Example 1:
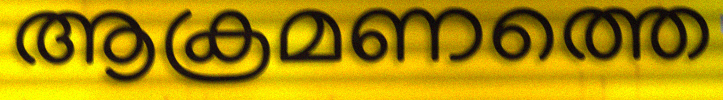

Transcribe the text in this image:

ആക്രമണത്തെ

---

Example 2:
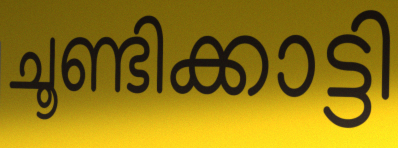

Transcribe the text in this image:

ചൂണ്ടിക്കാട്ടി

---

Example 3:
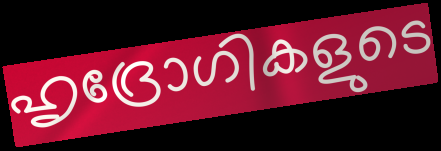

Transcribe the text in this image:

ഹൃദ്രോഗികളുടെ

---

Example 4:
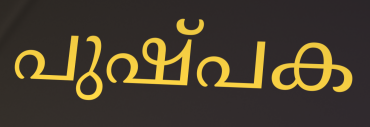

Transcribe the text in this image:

പുഷ്പക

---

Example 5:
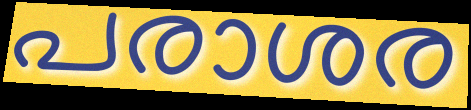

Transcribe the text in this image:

പരാശര